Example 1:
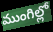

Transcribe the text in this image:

ముంగిల్లో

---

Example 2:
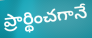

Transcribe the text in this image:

ప్రార్థించగానే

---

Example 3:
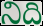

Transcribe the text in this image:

నిది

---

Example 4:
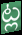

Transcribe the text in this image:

ట్ల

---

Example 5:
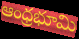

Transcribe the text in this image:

ఆంధ్రభూమి